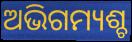
ଅଭିଗମ୍ୟଶ୍ଚ